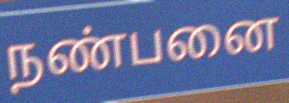
நண்பனை